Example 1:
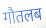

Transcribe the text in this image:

गौतलब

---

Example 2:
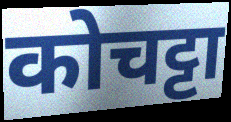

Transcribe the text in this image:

कोचट्टा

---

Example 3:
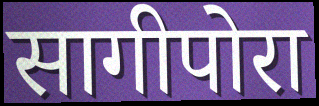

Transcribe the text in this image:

सागीपोरा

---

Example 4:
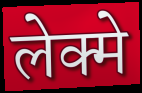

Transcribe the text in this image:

लेक्मे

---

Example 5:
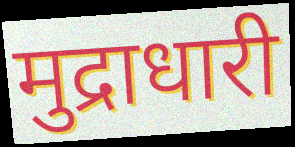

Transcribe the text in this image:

मुद्राधारी